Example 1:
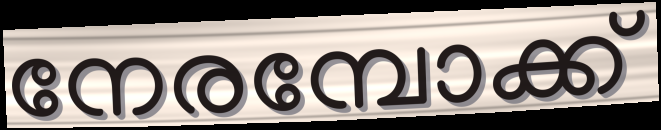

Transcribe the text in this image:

നേരമ്പോക്ക്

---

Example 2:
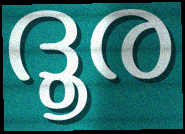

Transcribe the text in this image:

ദൂര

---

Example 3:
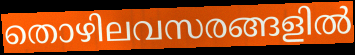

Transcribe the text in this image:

തൊഴിലവസരങ്ങളിൽ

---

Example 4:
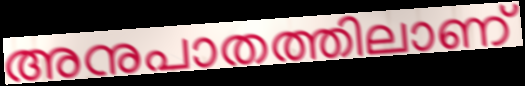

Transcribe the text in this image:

അനുപാതത്തിലാണ്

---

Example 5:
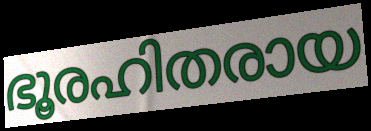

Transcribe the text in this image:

ഭൂരഹിതരായ